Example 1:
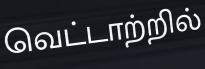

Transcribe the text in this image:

வெட்டாற்றில்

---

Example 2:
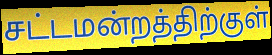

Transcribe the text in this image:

சட்டமன்றத்திற்குள்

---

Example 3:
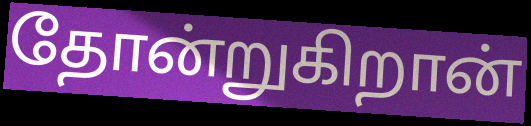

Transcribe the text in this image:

தோன்றுகிறான்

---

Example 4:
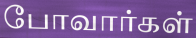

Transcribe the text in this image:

போவார்கள்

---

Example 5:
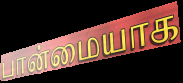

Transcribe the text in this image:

பான்மையாக